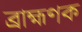
ব্ৰাহ্মণক